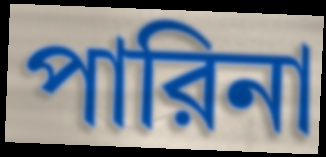
পারিনা